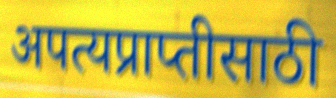
अपत्यप्राप्तीसाठी